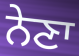
ਨੇਣਾ